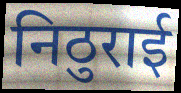
निठुराई